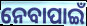
ନେବାପାଇଁ